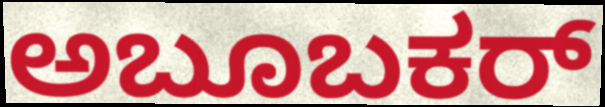
ಅಬೂಬಕರ್